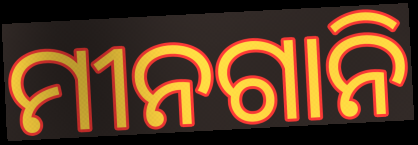
ମୀନଗାନି